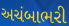
અચંબાભરી